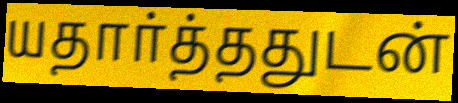
யதார்த்ததுடன்